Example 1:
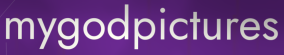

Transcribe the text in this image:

mygodpictures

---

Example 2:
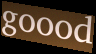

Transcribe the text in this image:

goood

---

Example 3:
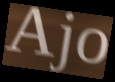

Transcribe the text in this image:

Ajo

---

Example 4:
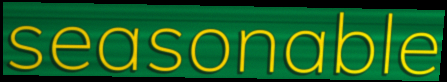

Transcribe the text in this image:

seasonable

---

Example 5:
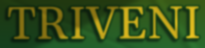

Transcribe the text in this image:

TRIVENI